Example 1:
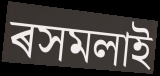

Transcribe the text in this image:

ৰসমলাই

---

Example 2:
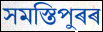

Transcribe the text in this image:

সমস্তিপুৰৰ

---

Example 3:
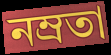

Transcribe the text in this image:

নম্ৰতা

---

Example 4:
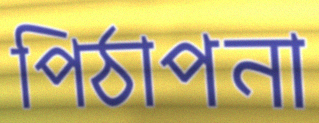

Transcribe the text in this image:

পিঠাপনা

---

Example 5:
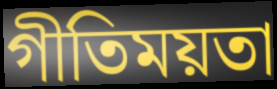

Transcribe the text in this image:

গীতিময়তা